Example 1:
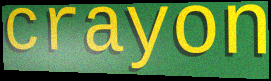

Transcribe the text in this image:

crayon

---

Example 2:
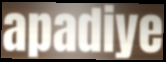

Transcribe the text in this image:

apadiye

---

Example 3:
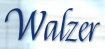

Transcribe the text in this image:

Walzer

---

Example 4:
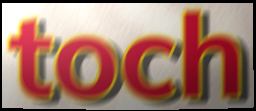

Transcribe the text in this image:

toch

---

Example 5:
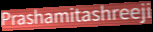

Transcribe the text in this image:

Prashamitashreeji